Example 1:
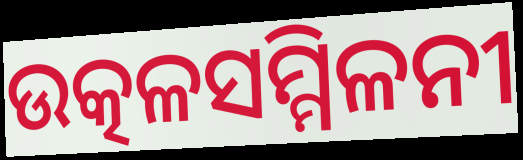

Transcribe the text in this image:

ଉତ୍କଳସମ୍ମିଳନୀ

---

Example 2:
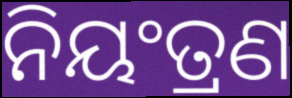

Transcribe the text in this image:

ନିୟଂତ୍ରଣ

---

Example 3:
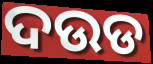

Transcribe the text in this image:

ଦଉଡ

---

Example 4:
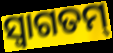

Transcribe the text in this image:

ସ୍ୱାଗତମ୍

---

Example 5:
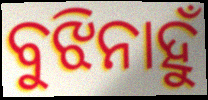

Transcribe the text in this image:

ବୁଝିନାହୁଁ